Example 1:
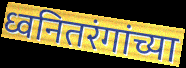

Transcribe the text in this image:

ध्वनितरंगांच्या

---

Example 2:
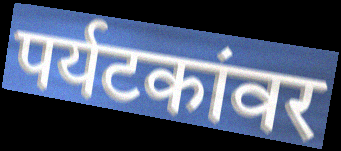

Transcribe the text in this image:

पर्यटकांवर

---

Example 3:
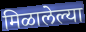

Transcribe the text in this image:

मिळालेल्या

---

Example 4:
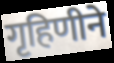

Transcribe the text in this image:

गृहिणीने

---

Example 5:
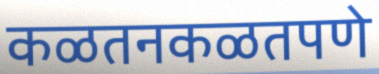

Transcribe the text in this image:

कळतनकळतपणे